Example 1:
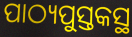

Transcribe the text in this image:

ପାଠ୍ୟପୁସ୍ତକସ୍ଥ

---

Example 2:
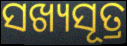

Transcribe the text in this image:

ସଖ୍ୟସୂତ୍ର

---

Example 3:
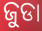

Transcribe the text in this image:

ଜୁଡା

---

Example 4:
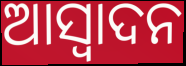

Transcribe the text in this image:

ଆସ୍ଵାଦନ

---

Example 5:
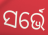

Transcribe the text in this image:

ସର୍ଭେ